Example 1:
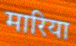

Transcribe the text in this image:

मारिया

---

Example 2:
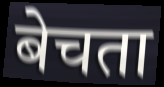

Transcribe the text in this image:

बेचता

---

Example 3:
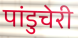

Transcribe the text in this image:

पांडुचेरी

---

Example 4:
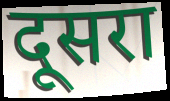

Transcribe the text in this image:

दूसरा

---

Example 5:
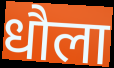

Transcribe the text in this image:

धौला